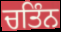
ਚਤਿੰਨ